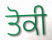
ਤੋਕੀ